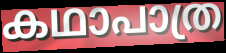
കഥാപാത്ര